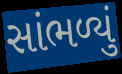
સાંભળ્યું